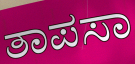
ತಾಪಸಾ